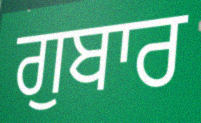
ਗੁਬਾਰ